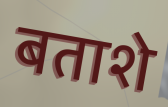
बताशे